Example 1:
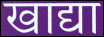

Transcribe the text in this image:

खाद्या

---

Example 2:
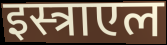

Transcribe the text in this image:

इस्त्राएल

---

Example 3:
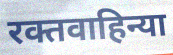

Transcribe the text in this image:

रक्तवाहिन्या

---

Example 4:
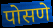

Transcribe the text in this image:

पोसणे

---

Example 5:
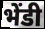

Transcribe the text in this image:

भेंडी